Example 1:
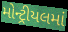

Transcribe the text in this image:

મોન્ટ્રીયલમાં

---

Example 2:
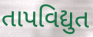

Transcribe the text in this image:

તાપવિદ્યુત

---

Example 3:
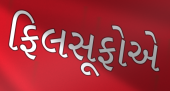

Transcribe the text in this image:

ફિલસૂફોએ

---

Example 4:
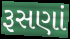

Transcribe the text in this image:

રૂસણાં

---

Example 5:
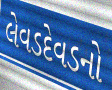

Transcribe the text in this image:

લેવડદેવડનો